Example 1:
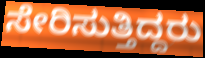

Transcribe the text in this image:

ಸೇರಿಸುತ್ತಿದ್ದರು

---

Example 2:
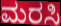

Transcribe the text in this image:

ಮರಸಿ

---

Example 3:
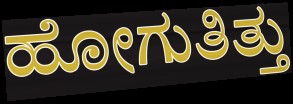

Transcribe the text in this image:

ಹೋಗುತಿತ್ತು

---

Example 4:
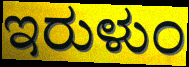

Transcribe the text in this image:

ಇರುಳುಂ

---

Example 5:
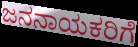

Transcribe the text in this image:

ಜನನಾಯಕರಿಗೆ